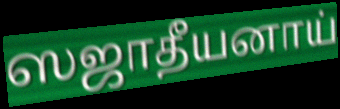
ஸஜாதீயனாய்